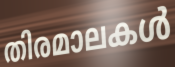
തിരമാലകൾ